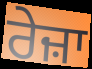
ਰੇਜ਼ਾ